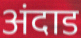
अंदाड